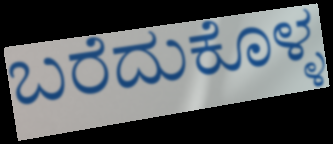
ಬರೆದುಕೊಳ್ಳ